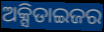
ଅକ୍ସିଡାଇଜର